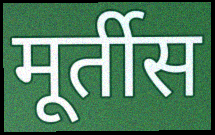
मूर्तीस